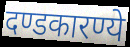
दण्डकारण्ये